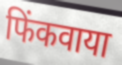
फिंकवाया